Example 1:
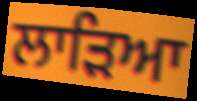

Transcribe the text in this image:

ਲਾੜਿਆ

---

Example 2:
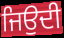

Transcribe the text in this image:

ਜਿਉਦੀ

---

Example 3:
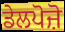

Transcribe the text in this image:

ਡੇਲਪੋਜ਼ੋ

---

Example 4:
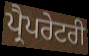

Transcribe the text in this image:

ਪ੍ਰੈਪਰੇਟਰੀ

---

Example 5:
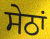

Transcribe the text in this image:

ਸੇਠਾਂ